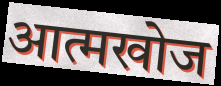
आत्मखोज